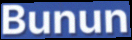
Bunun